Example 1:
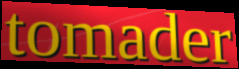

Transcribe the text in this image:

tomader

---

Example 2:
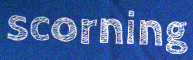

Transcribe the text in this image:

scorning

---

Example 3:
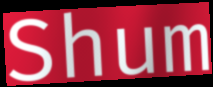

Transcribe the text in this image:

Shum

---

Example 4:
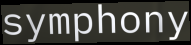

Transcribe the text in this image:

symphony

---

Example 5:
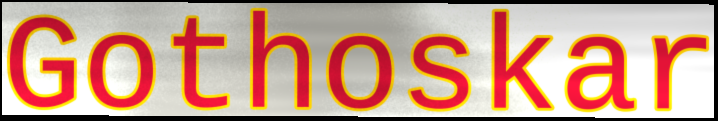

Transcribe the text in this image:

Gothoskar